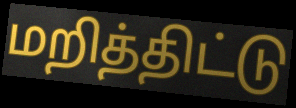
மறித்திட்டு